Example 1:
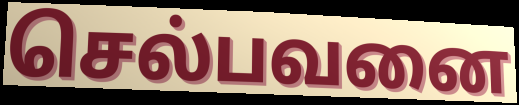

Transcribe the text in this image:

செல்பவனை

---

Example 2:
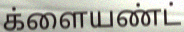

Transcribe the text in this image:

க்ளையண்ட்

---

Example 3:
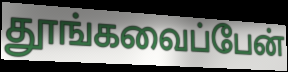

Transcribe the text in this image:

தூங்கவைப்பேன்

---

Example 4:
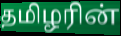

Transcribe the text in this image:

தமிழரின்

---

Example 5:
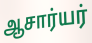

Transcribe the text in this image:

ஆசார்யர்